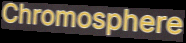
Chromosphere